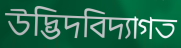
উদ্ভিদবিদ্যাগত